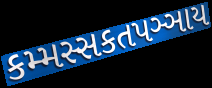
કમ્મસ્સકતપઞ્ઞાય